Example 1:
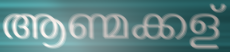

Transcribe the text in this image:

ആണ്മക്കള്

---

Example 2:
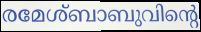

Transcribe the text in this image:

രമേശ്ബാബുവിന്റെ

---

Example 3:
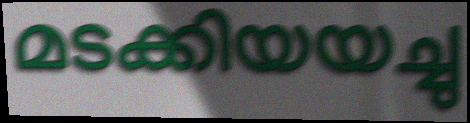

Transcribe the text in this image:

മടക്കിയയച്ചു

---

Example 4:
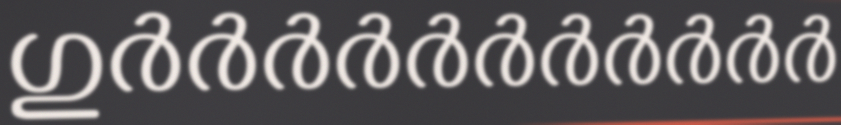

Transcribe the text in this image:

ഗുർർർർർർർർർർർ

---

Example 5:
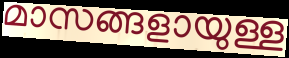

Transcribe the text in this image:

മാസങ്ങളായുള്ള